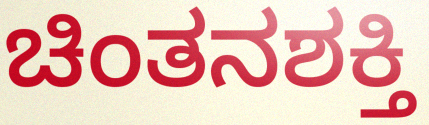
ಚಿಂತನಶಕ್ತಿ